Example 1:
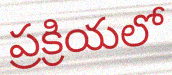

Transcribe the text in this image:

ప్రక్రియలో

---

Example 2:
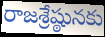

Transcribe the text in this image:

రాజశ్రేష్ఠునకు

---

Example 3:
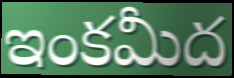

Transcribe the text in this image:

ఇంకమీద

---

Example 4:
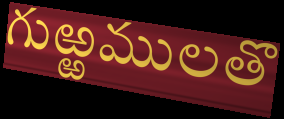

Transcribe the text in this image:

గుఱ్ఱములతొ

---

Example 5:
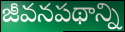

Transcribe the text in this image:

జీవనపథాన్ని